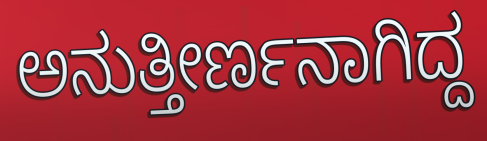
ಅನುತ್ತೀರ್ಣನಾಗಿದ್ದ